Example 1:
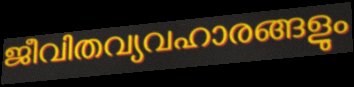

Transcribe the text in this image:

ജീവിതവ്യവഹാരങ്ങളും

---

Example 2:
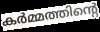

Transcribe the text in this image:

കർമ്മത്തിന്റെ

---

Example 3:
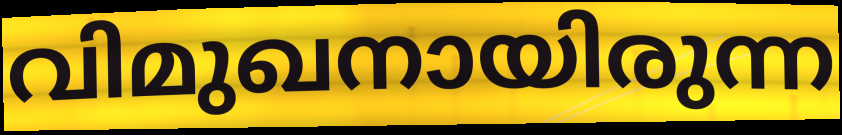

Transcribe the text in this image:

വിമുഖനായിരുന്ന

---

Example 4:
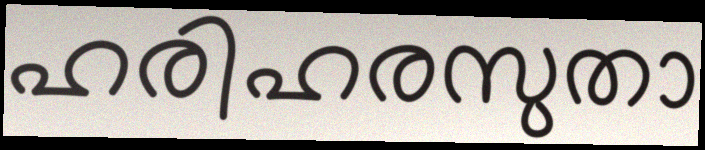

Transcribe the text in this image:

ഹരിഹരസുതാ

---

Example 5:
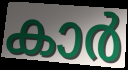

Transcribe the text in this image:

കാർ